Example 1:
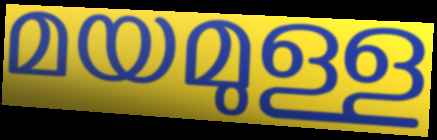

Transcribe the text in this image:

മയമുള്ള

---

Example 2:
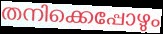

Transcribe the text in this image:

തനിക്കെപ്പോഴും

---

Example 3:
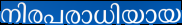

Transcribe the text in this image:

നിരപരാധിയായ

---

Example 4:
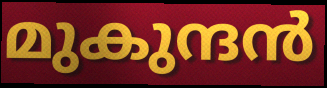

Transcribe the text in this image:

മുകുന്ദൻ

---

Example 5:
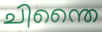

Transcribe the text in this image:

ചിന്തൈ